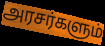
அரசர்களும்